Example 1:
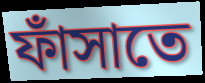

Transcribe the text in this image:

ফাঁসাতে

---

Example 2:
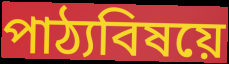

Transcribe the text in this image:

পাঠ্যবিষয়ে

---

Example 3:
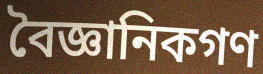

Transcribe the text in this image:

বৈজ্ঞানিকগণ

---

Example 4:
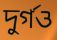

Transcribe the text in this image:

দুর্গও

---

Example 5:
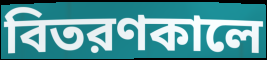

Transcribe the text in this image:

বিতরণকালে